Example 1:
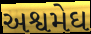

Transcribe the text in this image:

અશ્વમેઘ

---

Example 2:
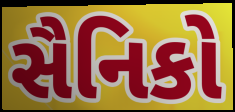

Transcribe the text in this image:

સૈનિકો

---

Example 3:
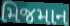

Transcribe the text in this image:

મિજમાન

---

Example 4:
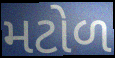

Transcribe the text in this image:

મટોળ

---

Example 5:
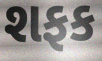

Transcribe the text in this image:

શફક